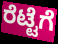
ರೆಟ್ಟೆಗೆ